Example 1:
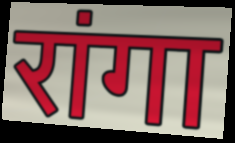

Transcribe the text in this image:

रांगा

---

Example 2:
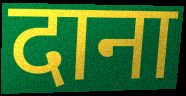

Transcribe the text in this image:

दाना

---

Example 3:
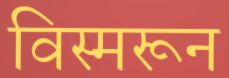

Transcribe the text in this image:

विस्मरून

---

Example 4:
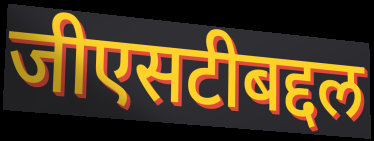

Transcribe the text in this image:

जीएसटीबद्दल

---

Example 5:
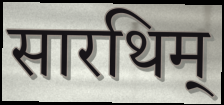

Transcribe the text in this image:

सारथिम्